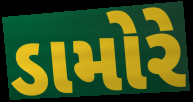
ડામોરે